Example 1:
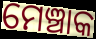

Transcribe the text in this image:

ମେଞ୍ଚାକ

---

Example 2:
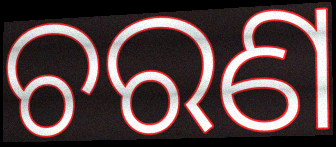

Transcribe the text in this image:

ଚରଣ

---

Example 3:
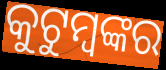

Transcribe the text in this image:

କୁଟୁମ୍ବଙ୍କର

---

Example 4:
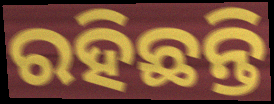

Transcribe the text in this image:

ରହିଛନ୍ତି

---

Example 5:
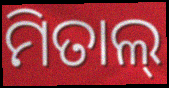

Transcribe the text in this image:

ମିତାଲ୍